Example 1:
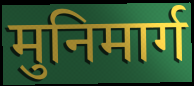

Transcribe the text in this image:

मुनिमार्ग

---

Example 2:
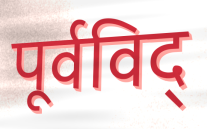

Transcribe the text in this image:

पूर्वविद्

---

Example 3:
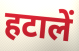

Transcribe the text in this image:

हटालें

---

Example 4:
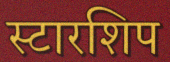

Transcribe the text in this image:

स्टारशिप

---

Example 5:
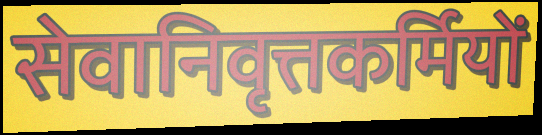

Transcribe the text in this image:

सेवानिवृत्तकर्मियों